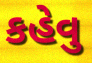
કહેવુ